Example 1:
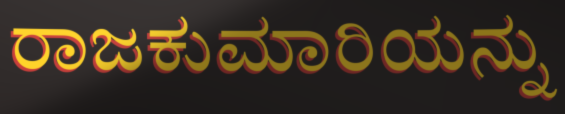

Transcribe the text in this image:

ರಾಜಕುಮಾರಿಯನ್ನು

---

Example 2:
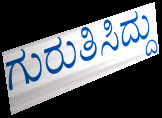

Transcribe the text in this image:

ಗುರುತಿಸಿದ್ದು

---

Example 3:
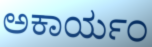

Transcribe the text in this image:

ಅಕಾರ್ಯಂ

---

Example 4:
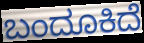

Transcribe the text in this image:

ಬಂದೂಕಿದೆ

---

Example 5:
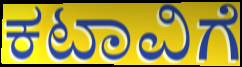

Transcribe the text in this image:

ಕಟಾವಿಗೆ